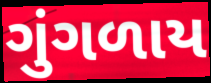
ગુંગળાય